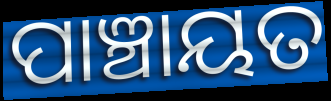
ପାଞ୍ଚାୟତ